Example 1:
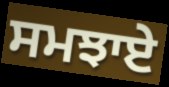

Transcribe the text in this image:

ਸਮਝਾਏ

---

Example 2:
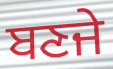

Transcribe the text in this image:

ਬਣਜੇ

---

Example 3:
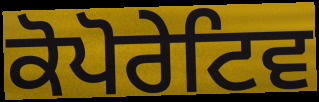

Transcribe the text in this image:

ਕੋਪੋਰੇਟਿਵ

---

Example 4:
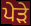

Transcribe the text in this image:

ਪੇੜੇ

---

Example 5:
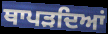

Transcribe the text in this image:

ਥਾਪੜਦਿਆਂ